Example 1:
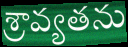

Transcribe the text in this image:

శ్రావ్యతను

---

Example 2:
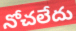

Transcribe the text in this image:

నోచలేదు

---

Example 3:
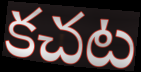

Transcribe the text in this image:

కచట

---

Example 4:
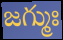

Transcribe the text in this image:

జగ్ముః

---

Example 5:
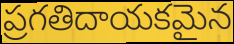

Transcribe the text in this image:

ప్రగతిదాయకమైన